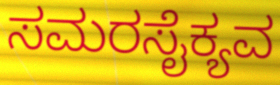
ಸಮರಸೈಕ್ಯವ